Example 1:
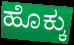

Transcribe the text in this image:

ಹೊಕ್ಕು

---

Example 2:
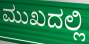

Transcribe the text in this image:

ಮುಖದಲ್ಲಿ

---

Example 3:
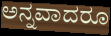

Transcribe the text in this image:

ಅನ್ನವಾದರೂ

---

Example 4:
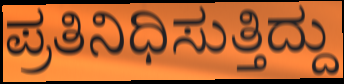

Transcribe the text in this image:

ಪ್ರತಿನಿಧಿಸುತ್ತಿದ್ದು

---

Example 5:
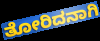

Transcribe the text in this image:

ತೋರಿದನಾಗಿ